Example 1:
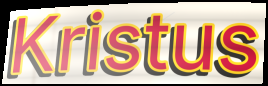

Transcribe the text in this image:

Kristus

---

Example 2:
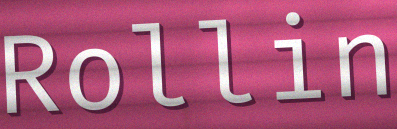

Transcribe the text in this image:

Rollin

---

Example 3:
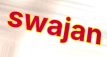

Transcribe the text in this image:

swajan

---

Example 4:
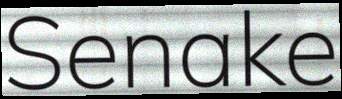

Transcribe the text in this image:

Senake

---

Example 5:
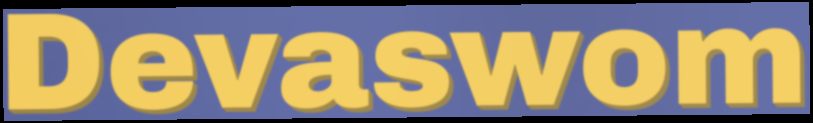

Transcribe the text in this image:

Devaswom